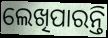
ଲେଖିପାରନ୍ତି